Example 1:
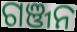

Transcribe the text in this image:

ଗଞ୍ଜନ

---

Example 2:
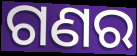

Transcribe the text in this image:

ଗଣର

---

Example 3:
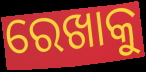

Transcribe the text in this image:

ରେଖାକୁ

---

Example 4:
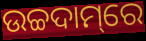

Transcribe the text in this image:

ଉଚ୍ଚଦାମ୍‌ରେ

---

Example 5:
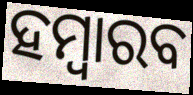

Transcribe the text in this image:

ହମ୍ବାରବ